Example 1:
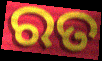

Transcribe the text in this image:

ରତ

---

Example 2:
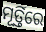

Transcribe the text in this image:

ମୂର୍ତ୍ତିରେ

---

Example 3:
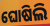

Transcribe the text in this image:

ଘୋଷିଲି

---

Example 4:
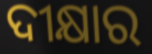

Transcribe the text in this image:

ଦୀକ୍ଷାର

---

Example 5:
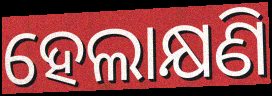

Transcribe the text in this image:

ହେଲାକ୍ଷଣି